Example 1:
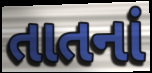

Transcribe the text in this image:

તાતનાં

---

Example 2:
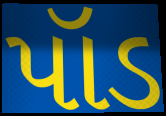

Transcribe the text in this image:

પૉડ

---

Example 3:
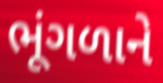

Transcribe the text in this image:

ભૂંગળાને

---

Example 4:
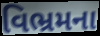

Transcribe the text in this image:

વિભ્રમના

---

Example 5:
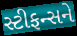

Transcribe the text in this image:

સ્ટીફન્સને